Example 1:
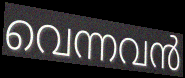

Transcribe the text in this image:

വെന്നവൻ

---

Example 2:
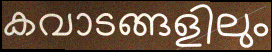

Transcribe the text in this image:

കവാടങ്ങളിലും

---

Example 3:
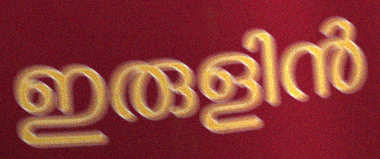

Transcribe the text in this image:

ഇരുളിൻ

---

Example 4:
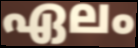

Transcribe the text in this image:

ഏലം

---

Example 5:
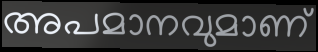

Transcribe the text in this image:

അപമാനവുമാണ്